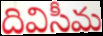
దివిసీమ